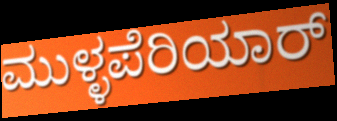
ಮುಳ್ಳಪೆರಿಯಾರ್